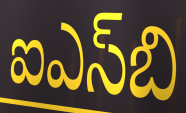
ఐఎస్‌బి